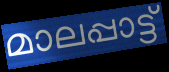
മാലപ്പാട്ട്